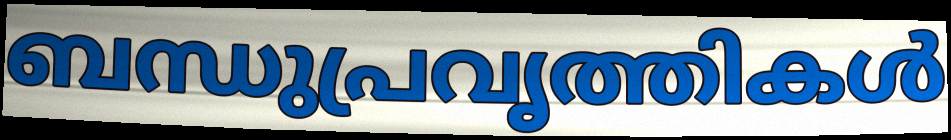
ബന്ധുപ്രവൃത്തികൾ